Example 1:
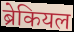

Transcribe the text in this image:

ब्रेकियल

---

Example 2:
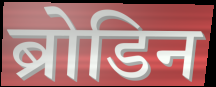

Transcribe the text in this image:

ब्रोडिन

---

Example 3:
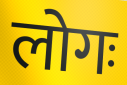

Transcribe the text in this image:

लोगः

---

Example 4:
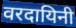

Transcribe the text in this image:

वरदायिनी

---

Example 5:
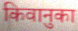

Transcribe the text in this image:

किवानुका